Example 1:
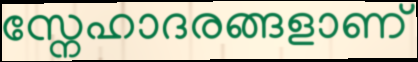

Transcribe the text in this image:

സ്നേഹാദരങ്ങളാണ്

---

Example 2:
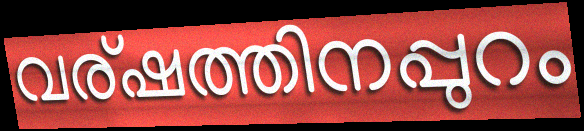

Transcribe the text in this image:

വര്ഷത്തിനപ്പുറം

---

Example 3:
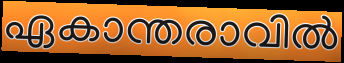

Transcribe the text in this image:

ഏകാന്തരാവിൽ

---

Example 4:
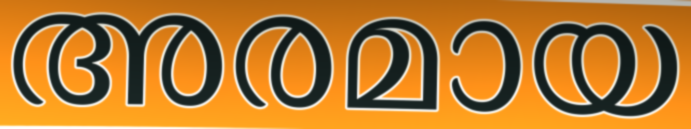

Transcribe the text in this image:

അരമായ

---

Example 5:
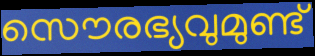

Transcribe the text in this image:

സൌരഭ്യവുമുണ്ട്